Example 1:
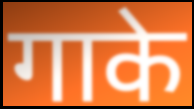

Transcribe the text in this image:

गाके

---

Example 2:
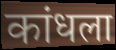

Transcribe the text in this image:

कांधला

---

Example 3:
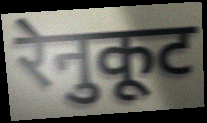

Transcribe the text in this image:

रेनुकूट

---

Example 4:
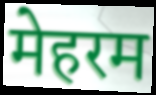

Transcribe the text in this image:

मेहरम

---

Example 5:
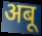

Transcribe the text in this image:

अबू